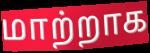
மாற்றாக